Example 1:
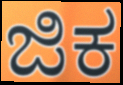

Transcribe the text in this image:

ಜಿಕ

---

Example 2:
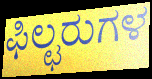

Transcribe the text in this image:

ಫಿಲ್ಟರುಗಳ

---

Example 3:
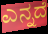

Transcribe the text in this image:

ಎನ್ನದೆ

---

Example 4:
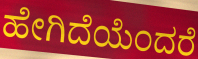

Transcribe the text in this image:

ಹೇಗಿದೆಯೆಂದರೆ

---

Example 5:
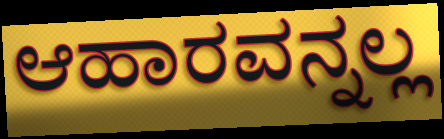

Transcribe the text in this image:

ಆಹಾರವನ್ನಲ್ಲ